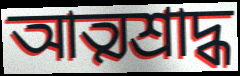
আত্মশ্রাদ্ধ